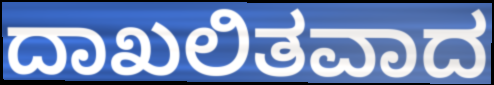
ದಾಖಲಿತವಾದ